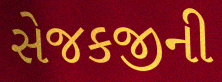
સેજકજીની